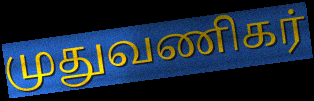
முதுவணிகர்